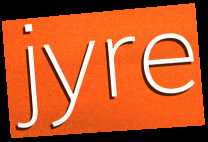
jyre